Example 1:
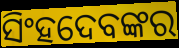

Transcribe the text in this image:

ସିଂହଦେବଙ୍କର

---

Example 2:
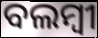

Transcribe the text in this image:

ବଲମ୍ୱୀ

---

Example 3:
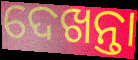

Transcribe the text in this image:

ଦେଖନ୍ତା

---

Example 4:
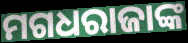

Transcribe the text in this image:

ମଗଧରାଜାଙ୍କ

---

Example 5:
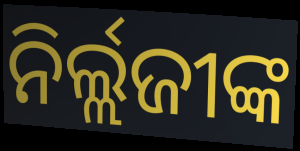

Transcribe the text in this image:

ନିର୍ଲ୍ଲଜୀଙ୍କ